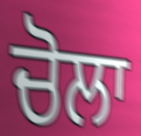
ਚੋਲਾ